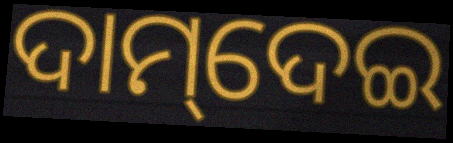
ଦାମ୍‌ଦେଇ